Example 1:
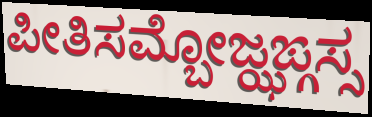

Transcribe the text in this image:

ಪೀತಿಸಮ್ಬೋಜ್ಝಙ್ಗಸ್ಸ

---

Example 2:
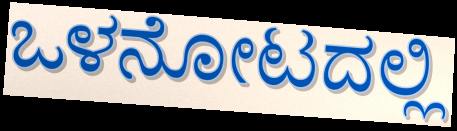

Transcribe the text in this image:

ಒಳನೋಟದಲ್ಲಿ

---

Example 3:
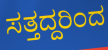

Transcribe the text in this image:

ಸತ್ತದ್ದರಿಂದ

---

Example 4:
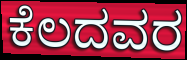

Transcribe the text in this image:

ಕೆಲದವರ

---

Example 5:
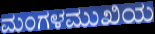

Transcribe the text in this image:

ಮಂಗಳಮುಖಿಯ